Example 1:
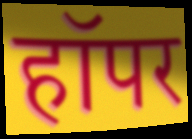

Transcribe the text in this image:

हॉपर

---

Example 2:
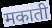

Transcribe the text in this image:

मकाती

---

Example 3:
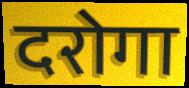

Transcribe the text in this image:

दरोगा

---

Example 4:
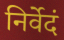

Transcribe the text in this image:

निर्वेदं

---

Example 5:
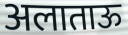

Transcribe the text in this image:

अलाताऊ